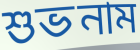
শুভনাম